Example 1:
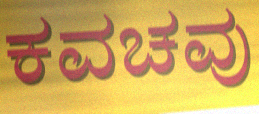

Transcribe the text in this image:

ಕವಚವು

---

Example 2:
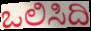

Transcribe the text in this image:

ಒಲಿಸಿದಿ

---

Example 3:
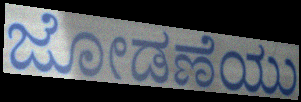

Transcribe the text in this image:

ಜೋಡಣೆಯು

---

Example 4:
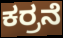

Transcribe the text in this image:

ಕರ್ರನೆ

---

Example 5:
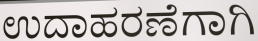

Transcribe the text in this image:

ಉದಾಹರಣೆಗಾಗಿ